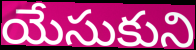
యేసుకుని